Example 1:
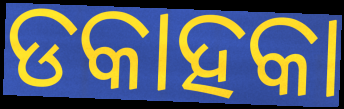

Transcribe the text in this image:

ଡକାହକା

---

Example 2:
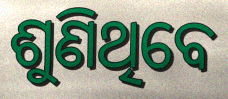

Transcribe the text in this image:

ଶୁଣିଥିବେ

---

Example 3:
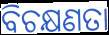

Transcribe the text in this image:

ବିଚକ୍ଷଣତା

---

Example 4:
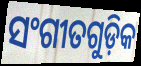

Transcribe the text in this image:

ସଂଗୀତଗୁଡ଼ିକ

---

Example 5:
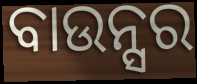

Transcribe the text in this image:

ବାଉନ୍ସର